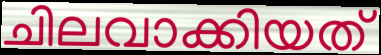
ചിലവാക്കിയത്